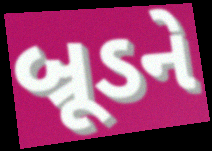
બ્રૂડને